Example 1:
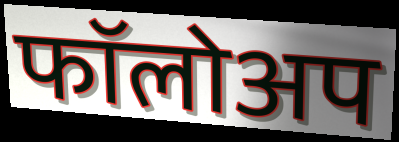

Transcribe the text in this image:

फॉलोअप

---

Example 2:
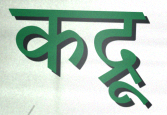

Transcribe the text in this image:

कद्रू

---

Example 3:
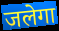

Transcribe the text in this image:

जलेगा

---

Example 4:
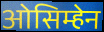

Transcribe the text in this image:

ओसिम्हेन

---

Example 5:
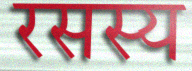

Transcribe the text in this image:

रसस्य